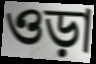
ওড়া